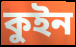
কুইন